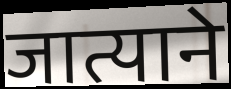
जात्याने